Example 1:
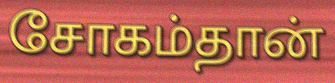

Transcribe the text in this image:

சோகம்தான்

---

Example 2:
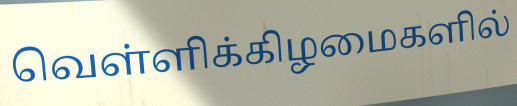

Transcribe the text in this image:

வெள்ளிக்கிழமைகளில்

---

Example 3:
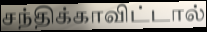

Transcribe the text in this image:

சந்திக்காவிட்டால்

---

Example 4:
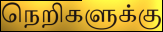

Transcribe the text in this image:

நெறிகளுக்கு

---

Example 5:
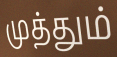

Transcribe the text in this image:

முத்தும்